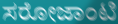
ಸರೋಜಾಂಟಿ